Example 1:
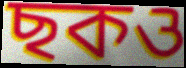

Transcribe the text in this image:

ছকও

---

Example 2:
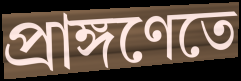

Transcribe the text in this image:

প্রাঙ্গণেতে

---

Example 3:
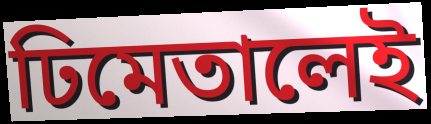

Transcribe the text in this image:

ঢিমেতালেই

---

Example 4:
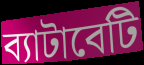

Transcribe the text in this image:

ব্যাটাবেটি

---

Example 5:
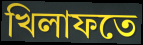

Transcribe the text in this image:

খিলাফতে